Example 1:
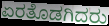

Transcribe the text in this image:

ಏರತೊಡಗಿದರು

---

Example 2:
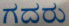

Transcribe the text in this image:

ಗದರು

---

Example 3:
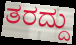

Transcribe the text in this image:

ತರದ್ದು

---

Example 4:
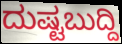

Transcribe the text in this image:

ದುಷ್ಟಬುದ್ದಿ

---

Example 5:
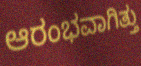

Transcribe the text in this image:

ಆರಂಭವಾಗಿತ್ತು